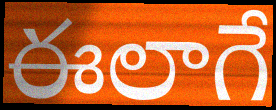
ఈలాగే